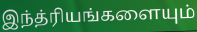
இந்த்ரியங்களையும்